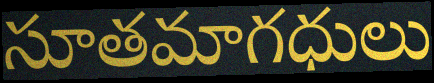
సూతమాగధులు